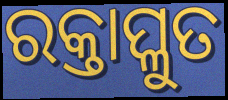
ରକ୍ତାପ୍ଳୁତ